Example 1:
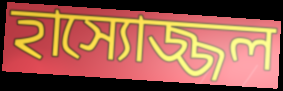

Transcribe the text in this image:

হাস্যোজ্জল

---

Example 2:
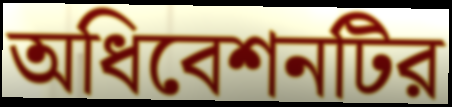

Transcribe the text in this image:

অধিবেশনটির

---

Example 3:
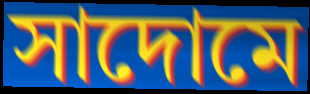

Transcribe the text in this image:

সাদোমে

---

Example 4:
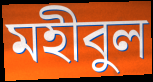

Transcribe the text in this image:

মহীবুল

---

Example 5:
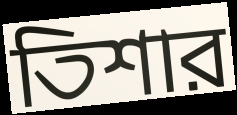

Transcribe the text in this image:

তিশার